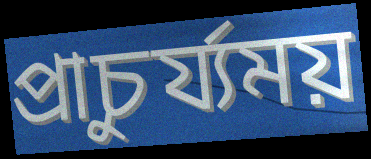
প্ৰাচুৰ্য্যময়